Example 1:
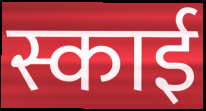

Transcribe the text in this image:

स्काई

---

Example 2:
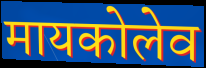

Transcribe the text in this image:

मायकोलेव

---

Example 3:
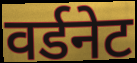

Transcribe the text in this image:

वर्डनेट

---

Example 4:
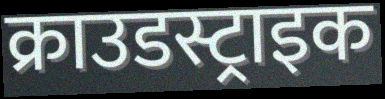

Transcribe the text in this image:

क्राउडस्ट्राइक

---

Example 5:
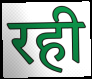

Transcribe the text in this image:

रही